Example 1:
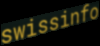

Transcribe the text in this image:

swissinfo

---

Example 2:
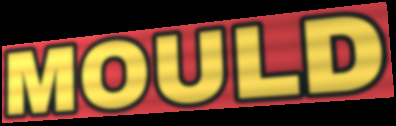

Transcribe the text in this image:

MOULD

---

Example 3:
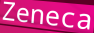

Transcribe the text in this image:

Zeneca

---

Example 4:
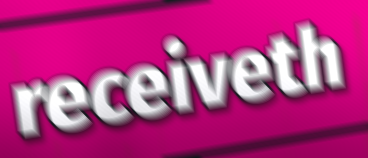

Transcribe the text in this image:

receiveth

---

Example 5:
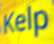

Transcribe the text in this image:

Kelp